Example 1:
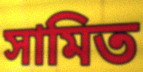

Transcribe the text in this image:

সামিত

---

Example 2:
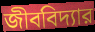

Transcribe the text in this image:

জীববিদ্যার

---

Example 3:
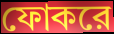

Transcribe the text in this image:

ফোকরে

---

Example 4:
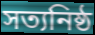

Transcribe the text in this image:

সত্যনিষ্ঠ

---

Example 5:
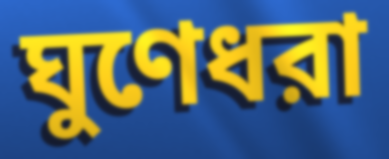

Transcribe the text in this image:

ঘুণেধরা